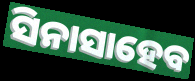
ସିନାସାହେବ